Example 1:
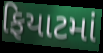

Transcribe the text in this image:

ફિયાટમાં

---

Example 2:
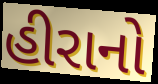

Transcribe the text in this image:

હીરાનો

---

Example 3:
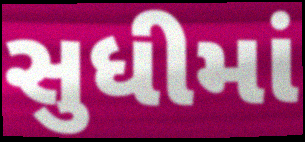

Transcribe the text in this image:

સુધીમાં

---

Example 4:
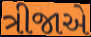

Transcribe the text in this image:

ત્રીજાએ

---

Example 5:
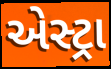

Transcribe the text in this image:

એસ્ટ્રા